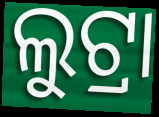
ଲୁଟ୍ରା